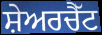
ਸ਼ੇਅਰਚੈੱਟ